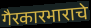
गैरकारभाराचे